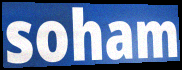
soham